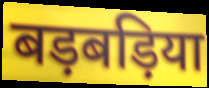
बड़बड़िया